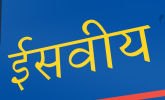
ईसवीय